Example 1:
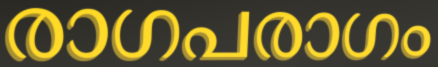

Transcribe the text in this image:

രാഗപരാഗം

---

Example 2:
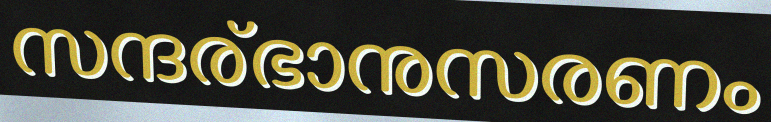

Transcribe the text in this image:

സന്ദര്ഭാനുസരണം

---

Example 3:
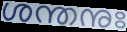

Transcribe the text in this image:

ശന്തനുഃ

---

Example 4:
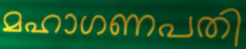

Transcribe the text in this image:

മഹാഗണപതി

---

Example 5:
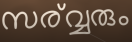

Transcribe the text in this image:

സര്വ്വരും